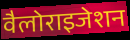
वैलोराइजेशन